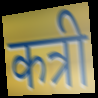
कत्री